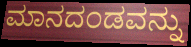
ಮಾನದಂಡವನ್ನು